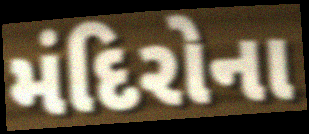
મંદિરોના